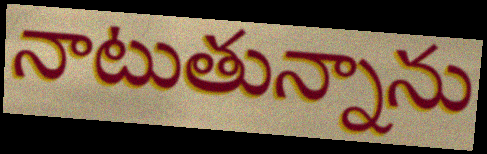
నాటుతున్నాను